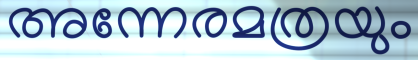
അന്നേരമത്രയും